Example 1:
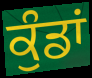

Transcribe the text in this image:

ਕੁੰਡਾਂ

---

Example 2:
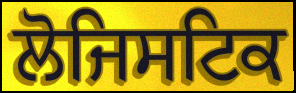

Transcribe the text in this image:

ਲੋਜਿਸਟਿਕ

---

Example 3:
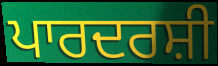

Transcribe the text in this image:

ਪਾਰਦਰਸ਼ੀ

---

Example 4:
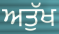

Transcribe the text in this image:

ਅਤੁੱਖ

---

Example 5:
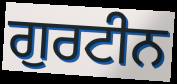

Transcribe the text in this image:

ਗੁਰਟੀਨ